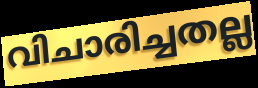
വിചാരിച്ചതല്ല